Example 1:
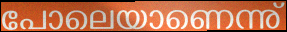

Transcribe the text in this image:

പോലെയാണെന്നു്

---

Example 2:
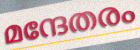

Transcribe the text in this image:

മന്ദേതരം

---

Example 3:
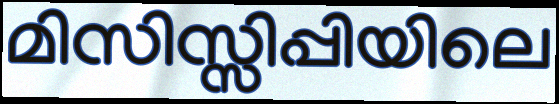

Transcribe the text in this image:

മിസിസ്സിപ്പിയിലെ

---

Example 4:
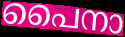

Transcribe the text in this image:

പൈനാ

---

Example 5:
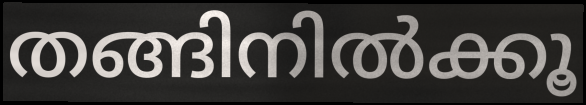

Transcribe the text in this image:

തങ്ങിനിൽക്കൂ